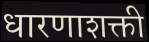
धारणाशक्ती